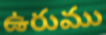
ఉరుము